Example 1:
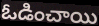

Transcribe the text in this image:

ఓడించాయి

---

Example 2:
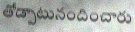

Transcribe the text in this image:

తోడ్పాటునందించారు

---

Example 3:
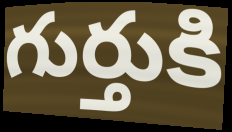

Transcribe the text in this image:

గుర్తుకి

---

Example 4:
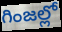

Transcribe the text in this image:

గింజల్లో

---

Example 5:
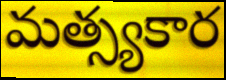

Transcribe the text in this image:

మత్స్యకార